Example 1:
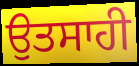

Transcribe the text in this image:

ਉਤਸਾਹੀ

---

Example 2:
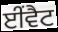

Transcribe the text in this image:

ਈਂਵੈਟ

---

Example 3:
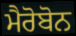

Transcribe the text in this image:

ਮੈਰੋਬੋਨ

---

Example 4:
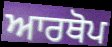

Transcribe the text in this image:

ਆਰਥੋਪ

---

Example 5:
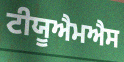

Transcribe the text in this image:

ਟੀਯੂਐਮਐਸ